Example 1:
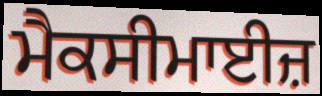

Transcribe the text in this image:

ਮੈਕਸੀਮਾਈਜ਼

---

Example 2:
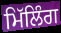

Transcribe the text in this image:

ਮਿੱਲਿੰਗ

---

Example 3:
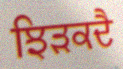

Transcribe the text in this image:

ਝਿੜਕਦੈ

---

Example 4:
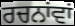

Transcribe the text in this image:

ਰਚਨਾਂਵਾਂ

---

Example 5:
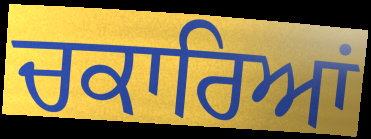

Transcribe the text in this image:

ਚਕਾਰਿਆਂ